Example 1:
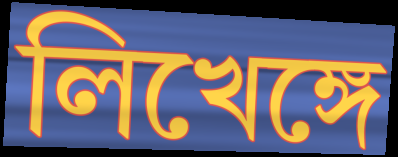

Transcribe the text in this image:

লিখেঙ্গে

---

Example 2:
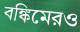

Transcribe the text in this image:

বঙ্কিমেরও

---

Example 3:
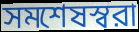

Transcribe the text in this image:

সমশেষস্বরা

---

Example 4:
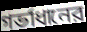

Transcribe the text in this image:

গর্ভাধানের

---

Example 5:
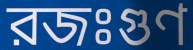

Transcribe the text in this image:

রজঃগুণ